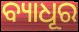
ବ୍ୟାଧୂର